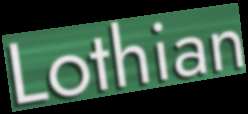
Lothian